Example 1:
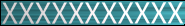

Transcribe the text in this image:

XXXXXXXXXXX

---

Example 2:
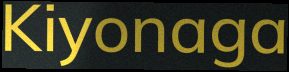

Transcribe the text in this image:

Kiyonaga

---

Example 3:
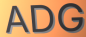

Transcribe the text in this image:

ADG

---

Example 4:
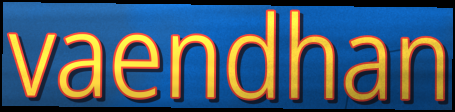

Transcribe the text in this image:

vaendhan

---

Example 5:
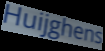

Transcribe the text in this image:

Huijghens